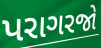
પરાગરજો